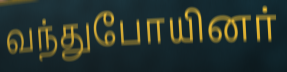
வந்துபோயினர்